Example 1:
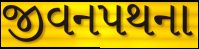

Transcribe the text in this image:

જીવનપથના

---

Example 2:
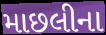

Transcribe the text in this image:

માછલીના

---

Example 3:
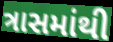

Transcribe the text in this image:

ત્રાસમાંથી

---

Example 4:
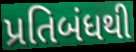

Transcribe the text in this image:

પ્રતિબંધથી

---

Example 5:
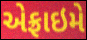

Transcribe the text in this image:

એફ્રાઇમે